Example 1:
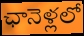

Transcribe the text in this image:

ఛానెళ్లలో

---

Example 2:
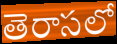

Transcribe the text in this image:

తెరాసలో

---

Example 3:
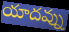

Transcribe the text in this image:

యాదవ్ను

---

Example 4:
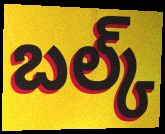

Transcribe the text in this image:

బల్క్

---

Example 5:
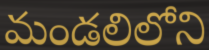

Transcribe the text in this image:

మండలిలోని